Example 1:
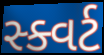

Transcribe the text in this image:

સ્ક્વર્ટ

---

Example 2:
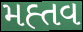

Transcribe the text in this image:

મહ્તવ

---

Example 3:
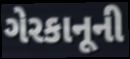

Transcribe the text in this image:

ગેરકાનૂની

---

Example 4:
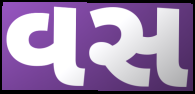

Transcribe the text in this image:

વસ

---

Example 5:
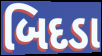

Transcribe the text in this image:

બિદડા